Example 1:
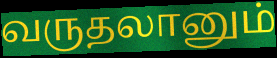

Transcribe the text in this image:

வருதலானும்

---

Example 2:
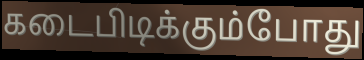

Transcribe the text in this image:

கடைபிடிக்கும்போது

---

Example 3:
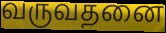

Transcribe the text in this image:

வருவதனை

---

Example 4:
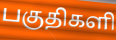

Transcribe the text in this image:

பகுதிகளி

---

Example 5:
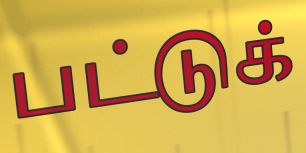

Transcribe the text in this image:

பட்டுக்